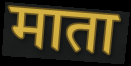
माता